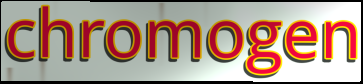
chromogen